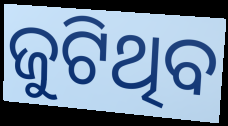
ଜୁଟିଥିବ